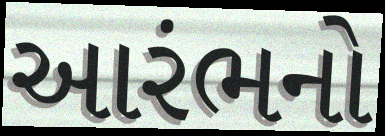
આરંભનો